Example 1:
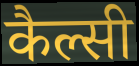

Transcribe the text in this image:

कैल्सी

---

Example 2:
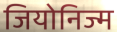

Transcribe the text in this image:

जियोनिज्म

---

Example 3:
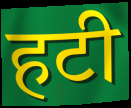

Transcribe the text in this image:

हटी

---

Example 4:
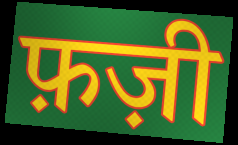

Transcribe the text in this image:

फ़ज़ी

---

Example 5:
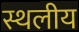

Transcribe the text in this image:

स्थलीय